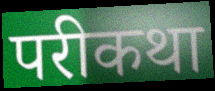
परीकथा